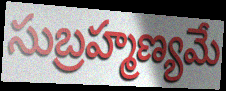
సుబ్రహ్మణ్యమే